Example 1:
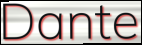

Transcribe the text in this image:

Dante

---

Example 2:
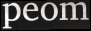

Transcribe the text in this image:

peom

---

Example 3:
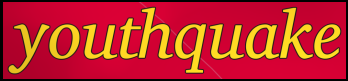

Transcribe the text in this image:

youthquake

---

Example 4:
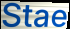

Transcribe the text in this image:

Stae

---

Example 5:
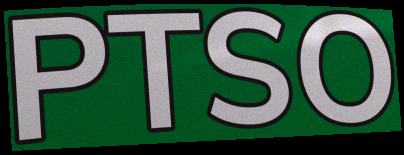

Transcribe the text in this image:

PTSO